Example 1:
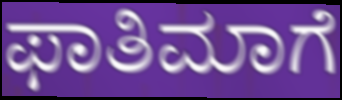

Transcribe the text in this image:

ಫಾತಿಮಾಗೆ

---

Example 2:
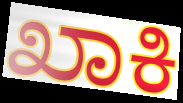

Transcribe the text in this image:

ಖಾಕಿ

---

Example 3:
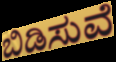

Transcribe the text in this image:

ಬಿಡಿಸುವೆ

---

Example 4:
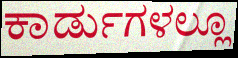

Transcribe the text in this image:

ಕಾರ್ಡುಗಳಲ್ಲೂ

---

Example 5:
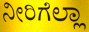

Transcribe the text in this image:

ನೀರಿಗೆಲ್ಲಾ